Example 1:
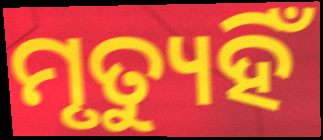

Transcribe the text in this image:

ମୃତ୍ୟୁହିଁ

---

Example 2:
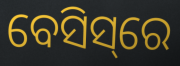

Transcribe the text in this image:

ବେସିସ୍‌ରେ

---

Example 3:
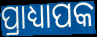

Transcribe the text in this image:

ପ୍ରାଧ୍ୟାପକ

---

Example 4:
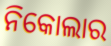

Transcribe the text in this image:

ନିକୋଲାର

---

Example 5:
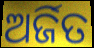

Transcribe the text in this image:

ଅର୍ଜିତ